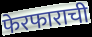
फेरफाराची